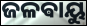
ଜଳଵାୟୁ